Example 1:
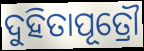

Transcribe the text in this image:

ଦୁହିତାପୂତ୍ରୌ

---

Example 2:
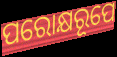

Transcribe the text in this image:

ପରୋକ୍ଷରୂପେ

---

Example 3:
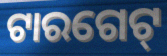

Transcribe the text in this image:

ଟାରଗେଟ୍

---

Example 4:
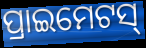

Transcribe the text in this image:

ପ୍ରାଇମେଟସ୍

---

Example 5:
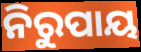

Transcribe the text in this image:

ନିରୁପାୟ